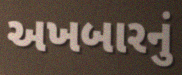
અખબારનું